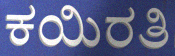
ಕಯಿರತಿ